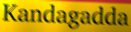
Kandagadda